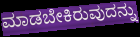
ಮಾಡಬೇಕಿರುವುದನ್ನು